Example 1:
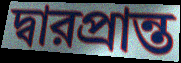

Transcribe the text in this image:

দ্বারপ্রান্ত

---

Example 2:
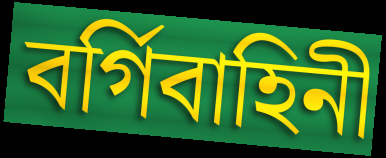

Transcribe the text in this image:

বর্গিবাহিনী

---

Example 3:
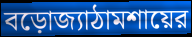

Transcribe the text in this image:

বড়োজ্যাঠামশায়ের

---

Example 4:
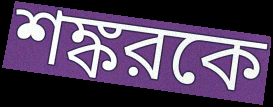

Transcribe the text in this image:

শঙ্করকে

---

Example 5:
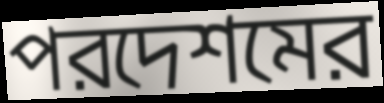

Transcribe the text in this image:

পরদেশমের